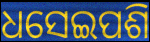
ଧସେଇପଶି